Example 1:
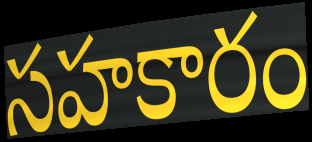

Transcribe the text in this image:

సహకారం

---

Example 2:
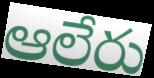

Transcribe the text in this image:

ఆలేరు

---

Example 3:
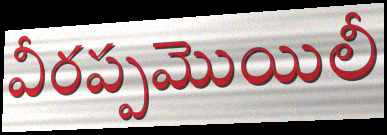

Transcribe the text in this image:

వీరప్పమొయిలీ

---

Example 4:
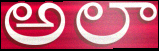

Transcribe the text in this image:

అలా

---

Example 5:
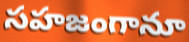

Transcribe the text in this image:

సహజంగానూ